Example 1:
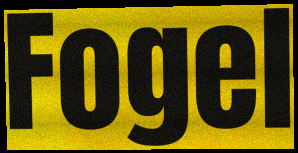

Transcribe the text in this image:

Fogel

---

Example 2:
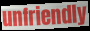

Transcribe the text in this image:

unfriendly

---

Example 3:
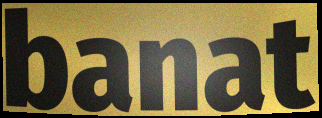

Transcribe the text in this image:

banat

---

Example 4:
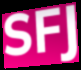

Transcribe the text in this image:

SFJ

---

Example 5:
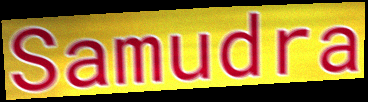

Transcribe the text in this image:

Samudra